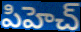
పిహెచ్